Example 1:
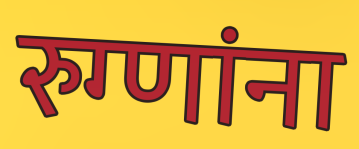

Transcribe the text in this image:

रुग्णांना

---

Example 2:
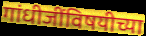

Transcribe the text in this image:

गांधीजींविषयीच्या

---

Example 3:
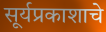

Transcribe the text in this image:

सूर्यप्रकाशाचे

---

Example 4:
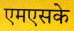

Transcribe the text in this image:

एमएसके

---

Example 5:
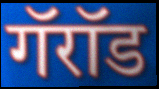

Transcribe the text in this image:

गॅरॉड